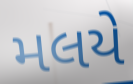
મલયે